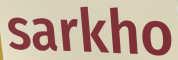
sarkho